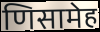
णिसामेह